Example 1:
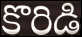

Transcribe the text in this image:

కొరిడి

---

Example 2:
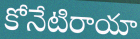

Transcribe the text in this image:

కోనేటిరాయా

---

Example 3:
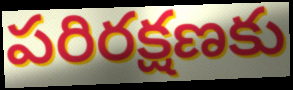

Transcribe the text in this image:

పరిరక్షణకు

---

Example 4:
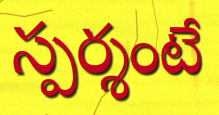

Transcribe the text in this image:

స్పర్శంటే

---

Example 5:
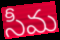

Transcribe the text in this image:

సీమ